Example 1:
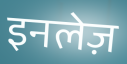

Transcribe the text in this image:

इनलेज़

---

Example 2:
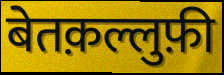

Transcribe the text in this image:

बेतक़ल्लुफ़ी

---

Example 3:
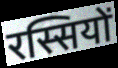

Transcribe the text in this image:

रस्सियों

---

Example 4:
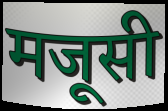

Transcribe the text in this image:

मजूसी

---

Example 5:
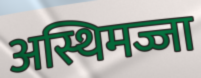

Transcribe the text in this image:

अस्थिमज्जा